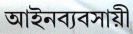
আইনব্যবসায়ী